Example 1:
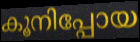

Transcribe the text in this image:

കൂനിപ്പോയ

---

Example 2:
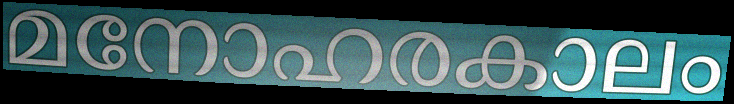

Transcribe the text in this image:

മനോഹരകാലം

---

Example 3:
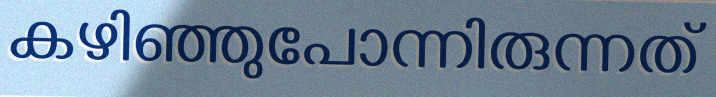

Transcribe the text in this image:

കഴിഞ്ഞുപോന്നിരുന്നത്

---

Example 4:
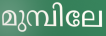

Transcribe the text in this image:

മുമ്പിലേ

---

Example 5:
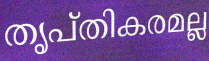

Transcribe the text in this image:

തൃപ്തികരമല്ല